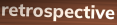
retrospective